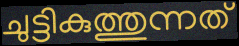
ചുട്ടികുത്തുന്നത്